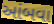
આંબવા